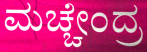
ಮಚ್ಚೇಂದ್ರ